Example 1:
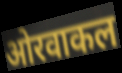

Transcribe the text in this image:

ओरवाकल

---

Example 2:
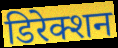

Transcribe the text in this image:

डिरेक्शन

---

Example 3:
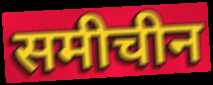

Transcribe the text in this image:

समीचीन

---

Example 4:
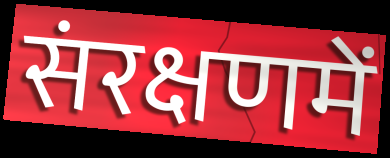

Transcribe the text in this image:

संरक्षणमें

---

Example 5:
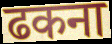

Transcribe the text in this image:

ढकना